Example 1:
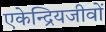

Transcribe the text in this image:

एकेन्द्रियजीवों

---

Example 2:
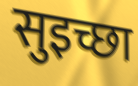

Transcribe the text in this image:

सुइच्छा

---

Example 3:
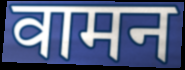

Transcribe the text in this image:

वामन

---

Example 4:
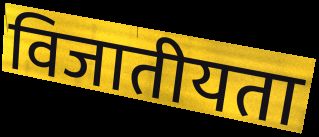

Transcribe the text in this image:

विजातीयता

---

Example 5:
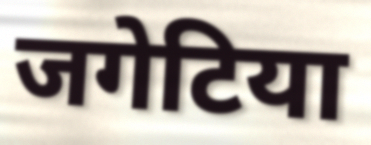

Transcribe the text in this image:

जगेटिया